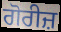
ਗੋਰੀਜ਼